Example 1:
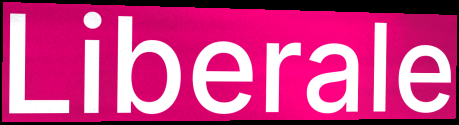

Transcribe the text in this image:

Liberale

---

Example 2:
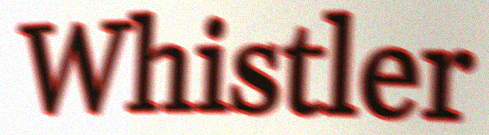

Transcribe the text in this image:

Whistler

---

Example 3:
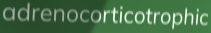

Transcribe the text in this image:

adrenocorticotrophic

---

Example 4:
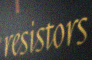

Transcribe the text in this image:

resistors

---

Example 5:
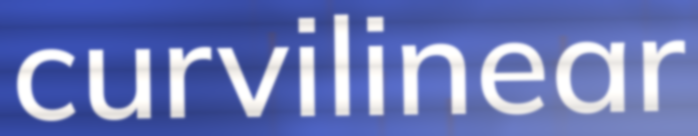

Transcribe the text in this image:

curvilinear